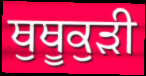
ਥੁਥੂਕੁੜੀ